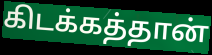
கிடக்கத்தான்